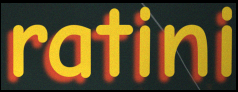
ratini